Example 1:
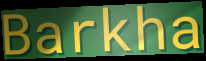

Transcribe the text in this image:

Barkha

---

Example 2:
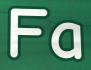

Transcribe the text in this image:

Fa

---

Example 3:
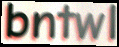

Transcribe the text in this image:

bntwl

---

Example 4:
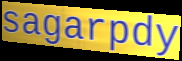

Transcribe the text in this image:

sagarpdy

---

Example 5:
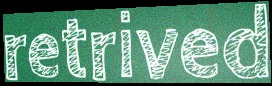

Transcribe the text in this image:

retrived